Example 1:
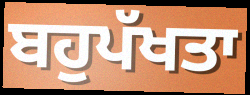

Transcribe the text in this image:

ਬਹੁਪੱਖਤਾ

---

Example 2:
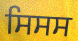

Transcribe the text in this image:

ਸਿਸਸ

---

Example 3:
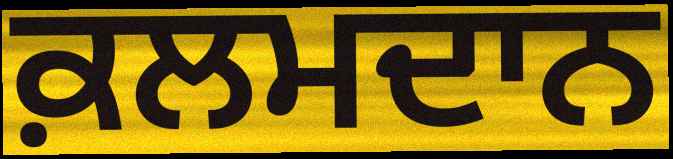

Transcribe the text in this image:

ਕ਼ਲਮਦਾਨ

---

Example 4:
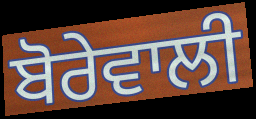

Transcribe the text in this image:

ਬੋਰੇਵਾਲੀ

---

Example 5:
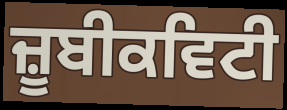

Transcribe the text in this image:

ਜ਼ੂਬੀਕਵਿਟੀ